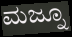
ಮಜ್ನೂ